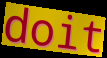
doit